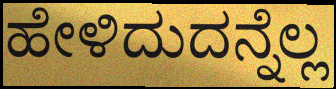
ಹೇಳಿದುದನ್ನೆಲ್ಲ